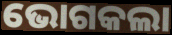
ଭୋଗକଲା